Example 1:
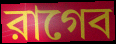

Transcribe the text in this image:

রাগেব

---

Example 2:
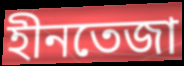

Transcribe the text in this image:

হীনতেজা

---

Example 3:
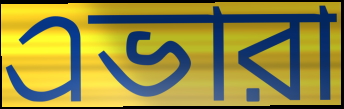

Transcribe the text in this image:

এভারা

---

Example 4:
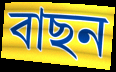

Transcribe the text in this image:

বাছন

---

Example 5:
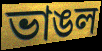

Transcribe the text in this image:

ভাঙল